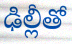
ఢిల్లీతో